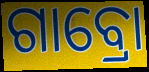
ଗାବ୍ରୋ